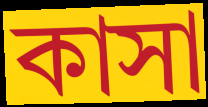
কাসা